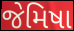
જેમિષા